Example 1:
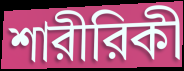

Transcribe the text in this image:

শারীরিকী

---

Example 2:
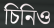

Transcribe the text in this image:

চিনিও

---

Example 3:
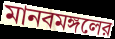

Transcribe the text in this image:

মানবমঙ্গলের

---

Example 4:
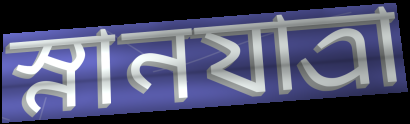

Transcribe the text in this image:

স্নানযাত্রা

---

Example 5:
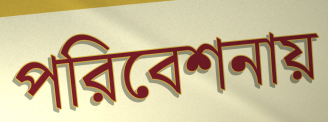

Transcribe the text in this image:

পরিবেশনায়